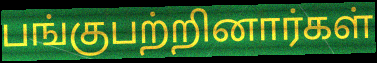
பங்குபற்றினார்கள்